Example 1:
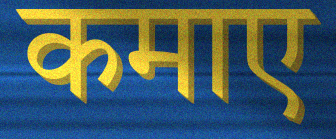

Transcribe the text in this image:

कमाए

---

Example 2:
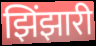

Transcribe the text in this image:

झिंझारी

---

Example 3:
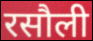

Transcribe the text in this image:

रसौली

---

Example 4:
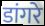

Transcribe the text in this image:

डांगरे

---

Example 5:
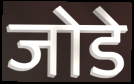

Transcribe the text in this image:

जोडे